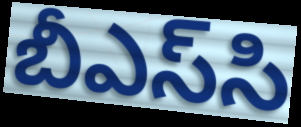
బీఎస్‌సి